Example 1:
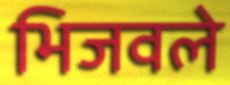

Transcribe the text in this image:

भिजवले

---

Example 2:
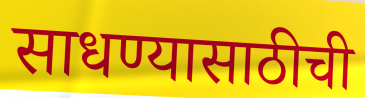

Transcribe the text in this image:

साधण्यासाठीची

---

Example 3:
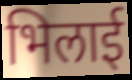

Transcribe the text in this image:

भिलाई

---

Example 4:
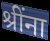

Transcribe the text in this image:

श्रींना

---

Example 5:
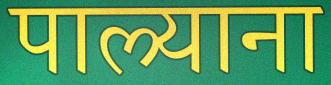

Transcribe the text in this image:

पाल्याना